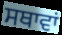
ਸਥਾਵਾਂ